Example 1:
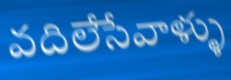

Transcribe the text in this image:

వదిలేసేవాళ్ళు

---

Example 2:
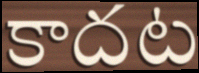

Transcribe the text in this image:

కాదట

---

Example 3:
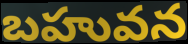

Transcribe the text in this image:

బహువన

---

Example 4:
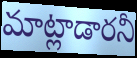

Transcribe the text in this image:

మాట్లాడారనీ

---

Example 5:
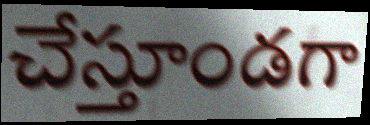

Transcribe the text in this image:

చేస్తూండగా